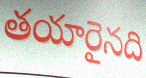
తయారైనది